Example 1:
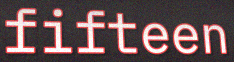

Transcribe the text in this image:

fifteen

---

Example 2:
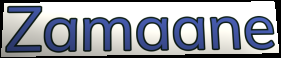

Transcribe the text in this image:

Zamaane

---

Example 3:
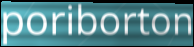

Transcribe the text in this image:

poriborton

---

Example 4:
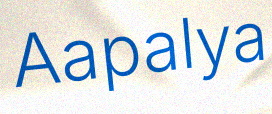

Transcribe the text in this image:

Aapalya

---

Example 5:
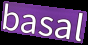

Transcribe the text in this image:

basal